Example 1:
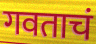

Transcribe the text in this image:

गवताचं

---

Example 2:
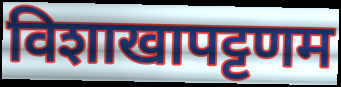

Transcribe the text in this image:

विशाखापट्टणम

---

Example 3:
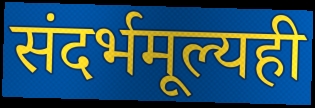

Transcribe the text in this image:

संदर्भमूल्यही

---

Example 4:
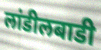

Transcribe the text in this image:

लांडीलबाडी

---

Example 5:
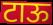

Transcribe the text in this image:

टाऊ